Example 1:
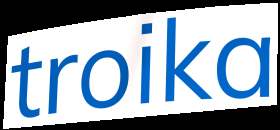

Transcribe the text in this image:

troika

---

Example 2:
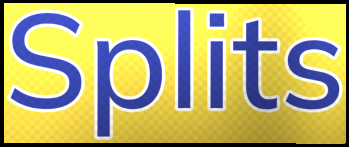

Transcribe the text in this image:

Splits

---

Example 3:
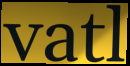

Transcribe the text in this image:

vatl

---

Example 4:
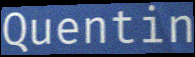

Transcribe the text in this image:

Quentin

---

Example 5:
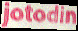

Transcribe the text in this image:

jotodin